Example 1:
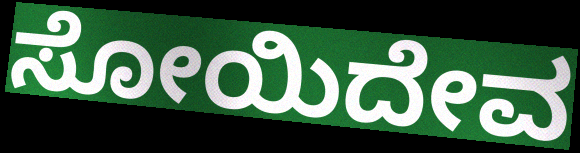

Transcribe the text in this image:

ಸೋಯಿದೇವ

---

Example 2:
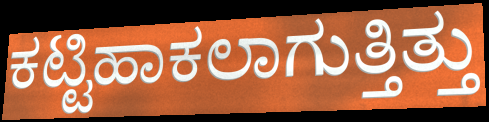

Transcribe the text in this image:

ಕಟ್ಟಿಹಾಕಲಾಗುತ್ತಿತ್ತು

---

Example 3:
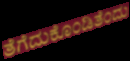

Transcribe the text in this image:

ತೆಗೆದುಕೊಂಡಿತೆಂದು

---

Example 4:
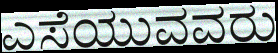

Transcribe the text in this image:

ಎಸೆಯುವವರು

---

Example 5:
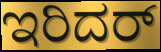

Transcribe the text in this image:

ಇರಿದರ್